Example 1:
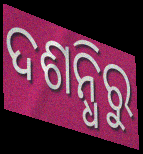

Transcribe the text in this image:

ଦଶନ୍ଧିରୁ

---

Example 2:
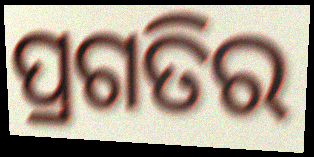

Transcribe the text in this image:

ପ୍ରଗତିର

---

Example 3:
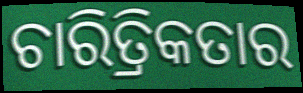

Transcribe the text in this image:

ଚାରିତ୍ରିକତାର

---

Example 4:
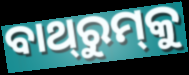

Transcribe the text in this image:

ବାଥ୍‌ରୁମ୍‌କୁ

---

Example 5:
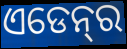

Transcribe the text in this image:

ଏଡେନ୍‍ର